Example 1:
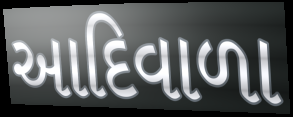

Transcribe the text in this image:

આદિવાળા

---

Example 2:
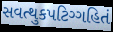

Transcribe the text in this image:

સવત્થુકપટિગ્ગહિતં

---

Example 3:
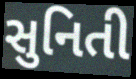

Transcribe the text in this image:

સુનિતી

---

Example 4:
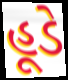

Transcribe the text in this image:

હૂડે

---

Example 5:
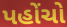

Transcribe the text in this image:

પહોંચો